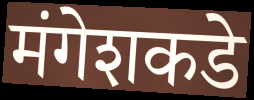
मंगेशकडे